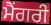
ਮੈਂਗਰੀ